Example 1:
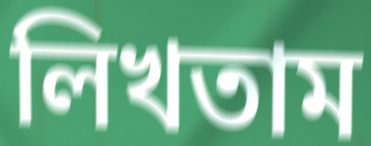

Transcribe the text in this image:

লিখতাম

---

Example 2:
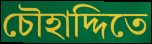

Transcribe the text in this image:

চৌহাদ্দিতে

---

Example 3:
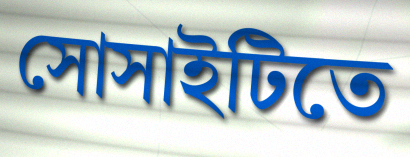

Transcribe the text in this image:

সোসাইটিতে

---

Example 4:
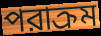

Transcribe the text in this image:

পরাক্রম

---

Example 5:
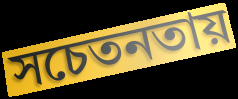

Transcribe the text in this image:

সচেতনতায়